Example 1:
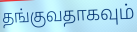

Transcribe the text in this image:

தங்குவதாகவும்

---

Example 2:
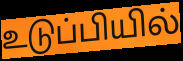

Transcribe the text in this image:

உடுப்பியில்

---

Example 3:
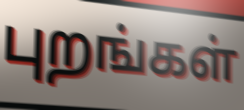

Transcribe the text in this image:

புறங்கள்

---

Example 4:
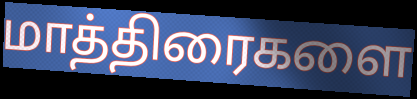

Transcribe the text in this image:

மாத்திரைகளை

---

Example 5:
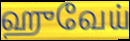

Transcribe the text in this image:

ஹுவேய்